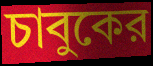
চাবুকের